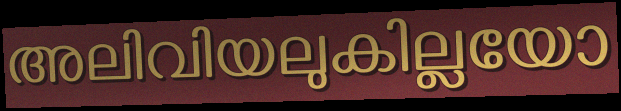
അലിവിയലുകില്ലയോ